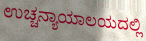
ಉಚ್ಚನ್ಯಾಯಾಲಯದಲ್ಲಿ